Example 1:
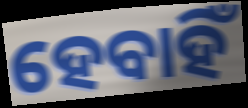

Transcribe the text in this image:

ହେବାହିଁ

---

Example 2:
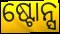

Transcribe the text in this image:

ଷ୍ଟୋନ୍ସ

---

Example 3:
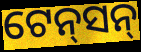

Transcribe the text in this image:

ଟେନ୍‌ସନ୍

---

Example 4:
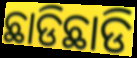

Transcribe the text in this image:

ଛାଡିଛାଡି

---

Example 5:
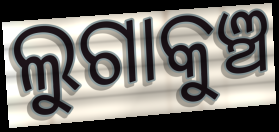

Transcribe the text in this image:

ଲୁଗାକୁଞ୍ଚ